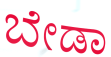
ಬೇಡಾ